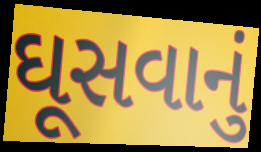
ઘૂસવાનું